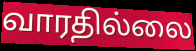
வாரதில்லை